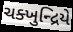
ચક્ખુન્દ્રિયે